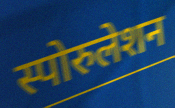
स्पोरुलेशन